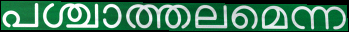
പശ്ചാത്തലമെന്ന